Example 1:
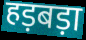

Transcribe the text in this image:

हड़बड़ा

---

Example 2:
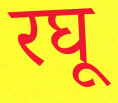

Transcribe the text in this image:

रघू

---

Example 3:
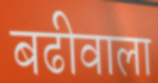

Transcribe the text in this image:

बढीवाला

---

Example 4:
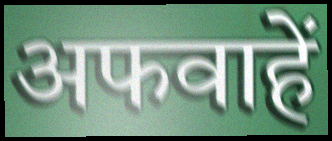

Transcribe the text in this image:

अफवाहें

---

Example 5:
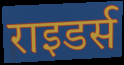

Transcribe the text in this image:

राइडर्स